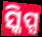
ସ୍କିପ୍ସ